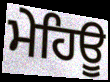
ਮੇਹਿਊ